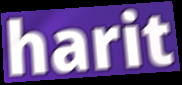
harit